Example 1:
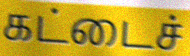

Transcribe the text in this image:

கட்டைச்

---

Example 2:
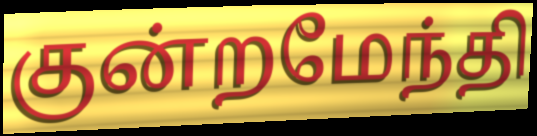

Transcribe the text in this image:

குன்றமேந்தி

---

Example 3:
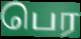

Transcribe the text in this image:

பெர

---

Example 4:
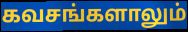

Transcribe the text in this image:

கவசங்களாலும்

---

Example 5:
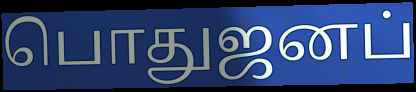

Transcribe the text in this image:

பொதுஜனப்